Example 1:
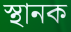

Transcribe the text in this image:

স্থানক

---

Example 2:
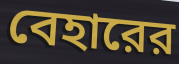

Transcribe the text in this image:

বেহারের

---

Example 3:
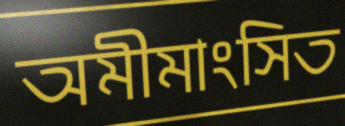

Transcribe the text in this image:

অমীমাংসিত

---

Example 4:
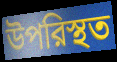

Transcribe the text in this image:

উপরিস্থত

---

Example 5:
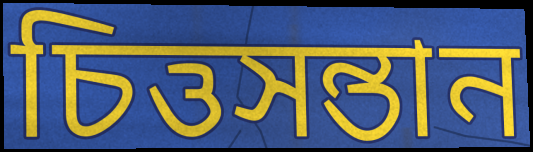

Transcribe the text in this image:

চিত্তসন্তান